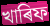
খাৰিফ